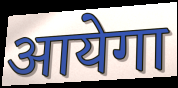
आयेगा